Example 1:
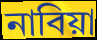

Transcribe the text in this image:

নাবিয়া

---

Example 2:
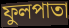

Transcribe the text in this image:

ফুলপাতা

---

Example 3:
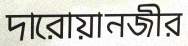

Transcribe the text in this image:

দারোয়ানজীর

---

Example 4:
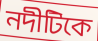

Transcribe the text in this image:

নদীটিকে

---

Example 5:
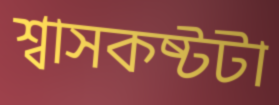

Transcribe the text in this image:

শ্বাসকষ্টটা